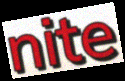
nite